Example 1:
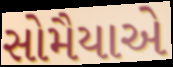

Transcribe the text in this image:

સોમૈયાએ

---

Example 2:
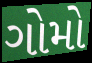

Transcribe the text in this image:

ગોમો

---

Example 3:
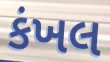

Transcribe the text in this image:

કંખલ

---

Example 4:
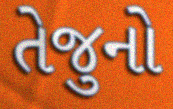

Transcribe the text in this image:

તેજુનો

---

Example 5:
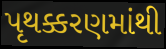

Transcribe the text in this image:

પૃથક્કરણમાંથી